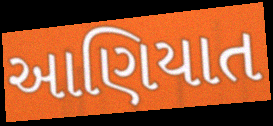
આણિયાત